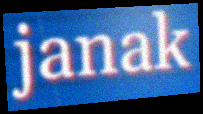
janak